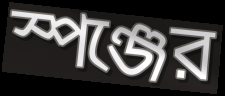
স্পঞ্জের